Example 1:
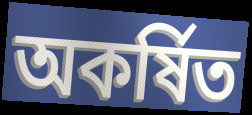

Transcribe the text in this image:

অকৰ্ষিত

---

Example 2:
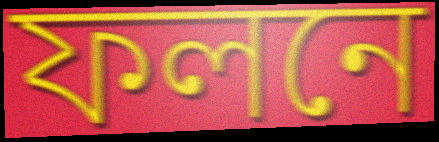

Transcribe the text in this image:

ফলনে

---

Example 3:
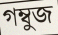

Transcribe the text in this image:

গম্বুজ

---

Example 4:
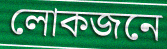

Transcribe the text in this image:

লোকজনে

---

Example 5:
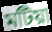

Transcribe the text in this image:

মটিয়া